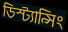
ডিস্ট্যান্সিং